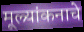
मूल्यांकनाचे